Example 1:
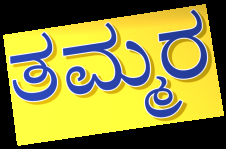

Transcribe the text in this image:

ತಮ್ಮರ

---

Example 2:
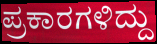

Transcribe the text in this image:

ಪ್ರಕಾರಗಳಿದ್ದು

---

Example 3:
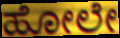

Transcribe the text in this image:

ಹೋಲೇ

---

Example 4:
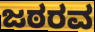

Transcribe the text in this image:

ಜಠರವ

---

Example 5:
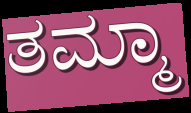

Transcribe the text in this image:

ತಮ್ಮಾ